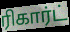
ரிகார்ட்